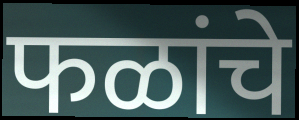
फळांचे